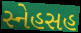
સ્નેહસહ